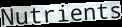
Nutrients